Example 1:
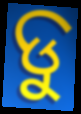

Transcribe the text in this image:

ଡୁ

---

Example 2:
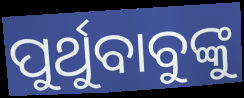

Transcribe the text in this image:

ପୁର୍ଥୁବାବୁଙ୍କୁ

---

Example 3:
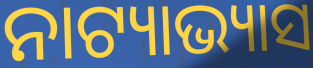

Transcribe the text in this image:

ନାଟ୍ୟାଭ୍ୟାସ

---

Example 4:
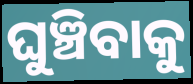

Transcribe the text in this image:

ଘୁଞ୍ଚିବାକୁ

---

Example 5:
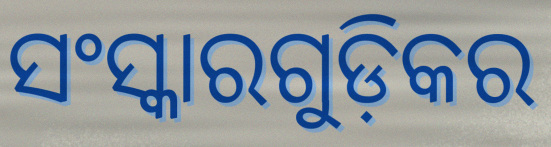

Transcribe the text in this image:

ସଂସ୍କାରଗୁଡ଼ିକର